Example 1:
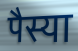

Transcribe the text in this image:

पैस्या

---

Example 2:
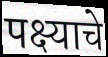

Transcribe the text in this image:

पक्ष्याचे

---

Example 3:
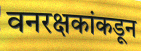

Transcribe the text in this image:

वनरक्षकांकडून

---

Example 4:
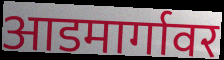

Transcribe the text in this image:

आडमार्गावर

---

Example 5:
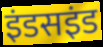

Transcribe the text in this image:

इंडसइंड